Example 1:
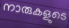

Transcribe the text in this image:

നാരുകളുടെ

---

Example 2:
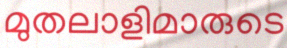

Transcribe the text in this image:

മുതലാളിമാരുടെ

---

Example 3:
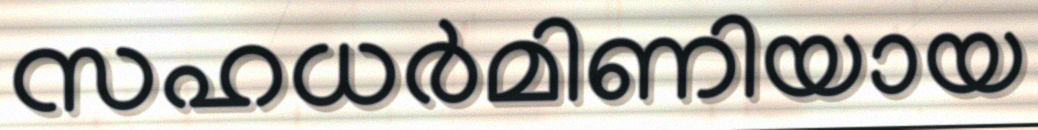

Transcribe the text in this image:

സഹധർമിണിയായ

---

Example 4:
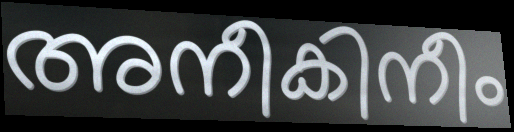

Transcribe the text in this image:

അനീകിനീം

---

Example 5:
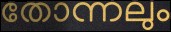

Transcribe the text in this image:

തോന്നലും